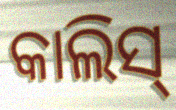
କାଲିସ୍